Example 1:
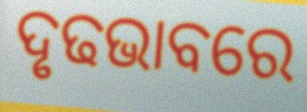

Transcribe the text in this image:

ଦୃଢଭାବରେ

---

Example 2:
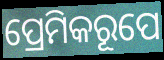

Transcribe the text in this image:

ପ୍ରେମିକରୂପେ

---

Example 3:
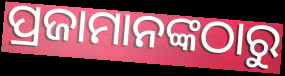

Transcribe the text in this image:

ପ୍ରଜାମାନଙ୍କଠାରୁ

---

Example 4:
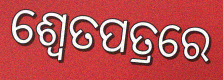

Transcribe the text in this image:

ଶ୍ଵେତପତ୍ରରେ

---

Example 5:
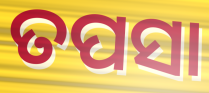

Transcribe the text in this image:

ତପସା